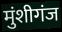
मुंशीगंज